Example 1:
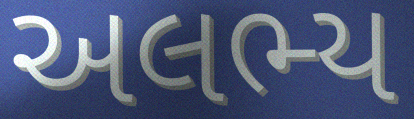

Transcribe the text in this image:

અલભ્ય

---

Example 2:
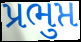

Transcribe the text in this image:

પ્રભુપ્ત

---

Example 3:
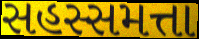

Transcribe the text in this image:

સહસ્સમત્તા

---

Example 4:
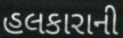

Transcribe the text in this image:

હલકારાની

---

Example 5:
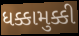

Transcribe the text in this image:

ધક્કામુક્કી